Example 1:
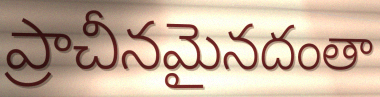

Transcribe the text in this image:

ప్రాచీనమైనదంతా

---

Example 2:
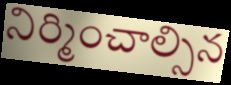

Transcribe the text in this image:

నిర్మించాల్సిన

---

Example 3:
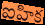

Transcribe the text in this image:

ఐహిక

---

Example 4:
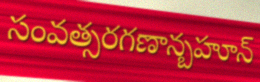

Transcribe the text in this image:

సంవత్సరగణాన్బహూన్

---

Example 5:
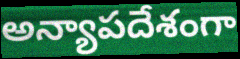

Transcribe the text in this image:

అన్యాపదేశంగా